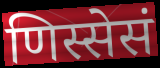
णिस्सेसं